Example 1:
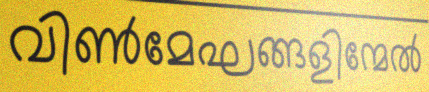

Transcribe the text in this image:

വിൺമേഘങ്ങളിന്മേൽ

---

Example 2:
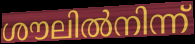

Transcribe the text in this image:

ശൗലിൽനിന്ന്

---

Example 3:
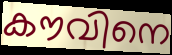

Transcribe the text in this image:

കൗവിനെ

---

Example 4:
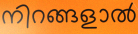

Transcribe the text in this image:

നിറങ്ങളാൽ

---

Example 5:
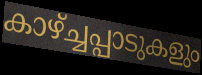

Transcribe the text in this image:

കാഴ്ച്ചപ്പാടുകളും